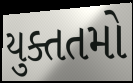
યુક્તતમો